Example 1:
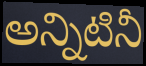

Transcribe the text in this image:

అన్నిటినీ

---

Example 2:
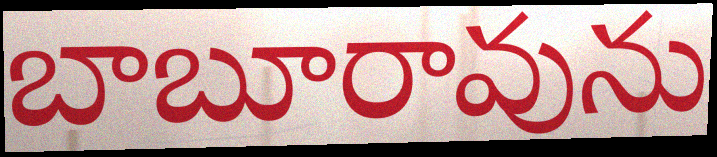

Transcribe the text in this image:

బాబూరావును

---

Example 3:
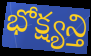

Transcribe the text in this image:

భోక్ష్యన్తి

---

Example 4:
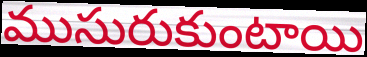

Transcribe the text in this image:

ముసురుకుంటాయి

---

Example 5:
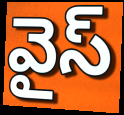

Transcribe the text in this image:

వైస్